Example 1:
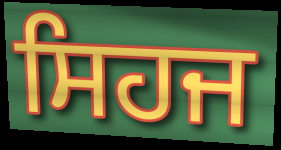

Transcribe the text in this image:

ਸਿਹਜ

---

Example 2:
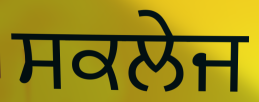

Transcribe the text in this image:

ਸਕਲੇਜ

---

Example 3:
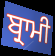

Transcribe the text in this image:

ਬ੍ਰਾਮੀ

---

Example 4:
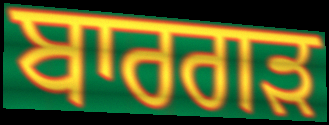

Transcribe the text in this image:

ਬਾਰਗੜ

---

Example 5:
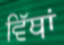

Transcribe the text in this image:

ਵਿੱਥਾਂ